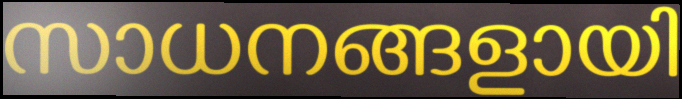
സാധനങ്ങളായി